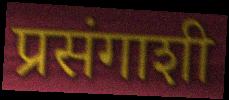
प्रसंगाशी